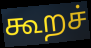
கூறச்